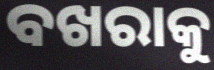
ବଖରାକୁ